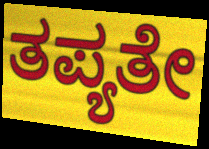
ತಪ್ಯತೇ